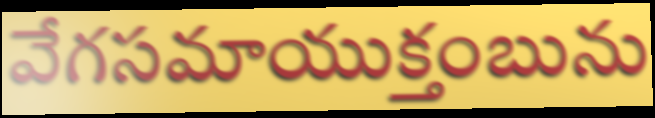
వేగసమాయుక్తంబును